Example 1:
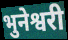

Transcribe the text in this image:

भुनेश्वरी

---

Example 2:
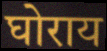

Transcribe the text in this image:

घोराय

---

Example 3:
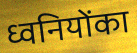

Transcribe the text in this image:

ध्वनियोंका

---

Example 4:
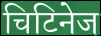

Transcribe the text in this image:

चिटिनेज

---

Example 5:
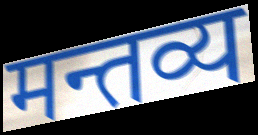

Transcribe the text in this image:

मन्तव्य